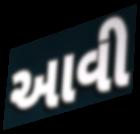
આવી